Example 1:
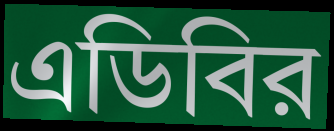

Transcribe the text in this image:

এডিবির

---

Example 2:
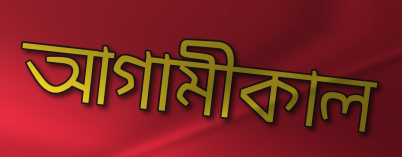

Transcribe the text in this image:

আগামীকাল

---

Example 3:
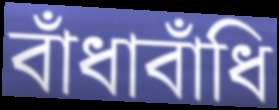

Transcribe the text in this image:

বাঁধাবাঁধি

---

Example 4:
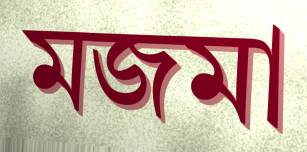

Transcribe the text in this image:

মজমা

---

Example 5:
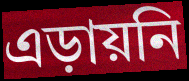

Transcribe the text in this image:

এড়ায়নি